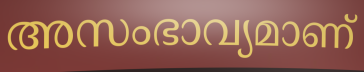
അസംഭാവ്യമാണ്